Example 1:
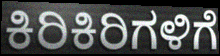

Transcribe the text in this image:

ಕಿರಿಕಿರಿಗಳಿಗೆ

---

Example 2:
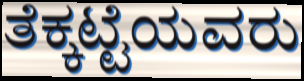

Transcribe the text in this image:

ತೆಕ್ಕಟ್ಟೆಯವರು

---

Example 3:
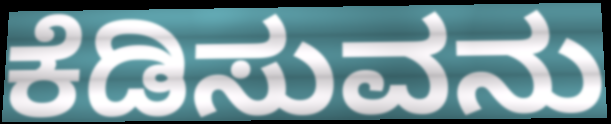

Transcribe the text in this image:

ಕೆಡಿಸುವನು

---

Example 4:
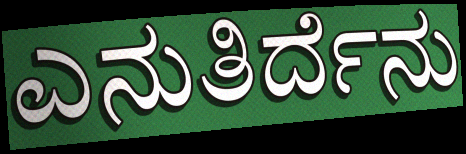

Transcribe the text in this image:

ಎನುತಿರ್ದೆನು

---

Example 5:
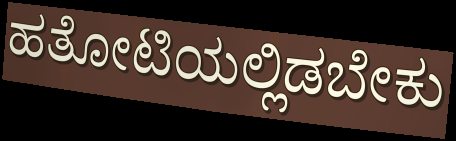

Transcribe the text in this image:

ಹತೋಟಿಯಲ್ಲಿಡಬೇಕು